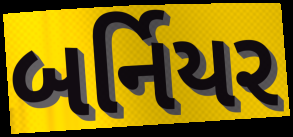
બર્નિયર